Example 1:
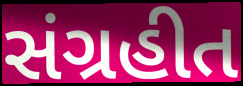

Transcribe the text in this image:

સંગ્રહીત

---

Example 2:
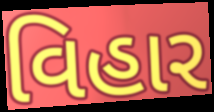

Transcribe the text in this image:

વિહાર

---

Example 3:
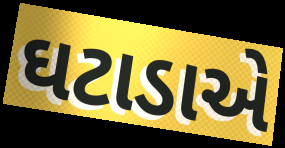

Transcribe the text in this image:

ઘટાડાએ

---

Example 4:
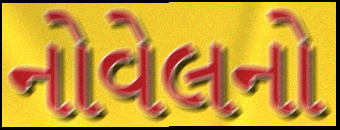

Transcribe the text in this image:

નોવેલનો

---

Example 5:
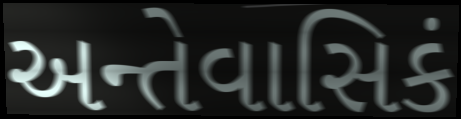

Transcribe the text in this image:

અન્તેવાસિકં